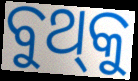
ବୁଥ୍‌କୁ